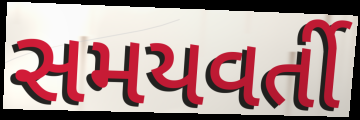
સમયવર્તી